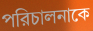
পরিচালনাকে